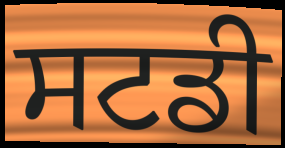
ਸਟਡੀ